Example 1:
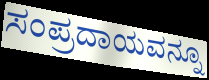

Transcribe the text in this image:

ಸಂಪ್ರದಾಯವನ್ನೂ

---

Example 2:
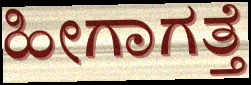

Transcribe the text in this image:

ಹೀಗಾಗತ್ತೆ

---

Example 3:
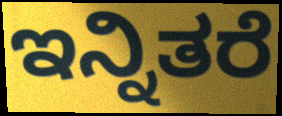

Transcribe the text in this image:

ಇನ್ನಿತರೆ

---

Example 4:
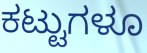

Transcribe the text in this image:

ಕಟ್ಟುಗಳೂ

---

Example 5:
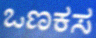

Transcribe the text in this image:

ಒಣಕಸ